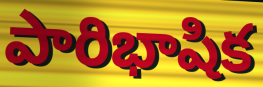
పారిభాషిక